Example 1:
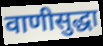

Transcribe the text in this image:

वाणीसुद्धा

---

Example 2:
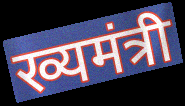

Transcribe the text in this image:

ख्यमंत्री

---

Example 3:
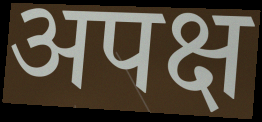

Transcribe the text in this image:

अपक्ष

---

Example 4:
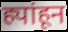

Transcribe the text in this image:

ह्यांहून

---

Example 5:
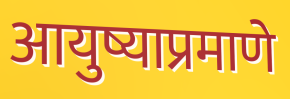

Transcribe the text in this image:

आयुष्याप्रमाणे